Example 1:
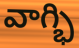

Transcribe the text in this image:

వాగ్భి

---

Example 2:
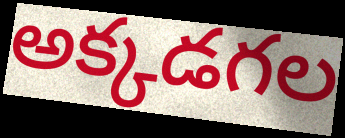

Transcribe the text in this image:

అక్కడగల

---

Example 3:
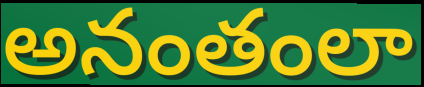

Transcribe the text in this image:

అనంతంలా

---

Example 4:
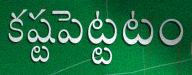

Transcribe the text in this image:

కష్టపెట్టటం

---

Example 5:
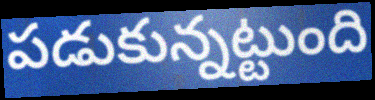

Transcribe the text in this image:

పడుకున్నట్టుంది